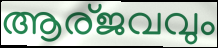
ആര്ജവവും